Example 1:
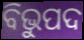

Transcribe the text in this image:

ବିଭୁପଦ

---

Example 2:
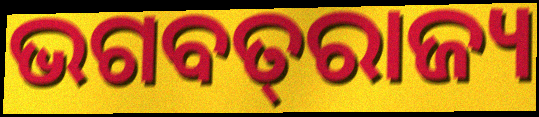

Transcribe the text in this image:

ଭଗବତ୍‌ରାଜ୍ୟ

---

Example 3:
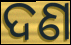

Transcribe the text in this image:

ଦଣ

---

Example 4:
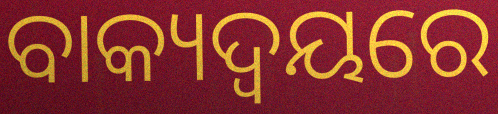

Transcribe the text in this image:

ବାକ୍ୟଦ୍ଵୟରେ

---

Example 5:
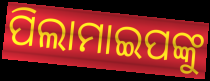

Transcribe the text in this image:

ପିଲାମାଇପଙ୍କୁ